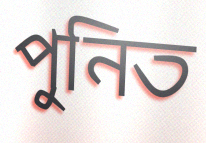
পুনিত